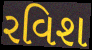
રવિશ